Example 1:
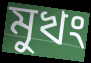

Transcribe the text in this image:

মুখং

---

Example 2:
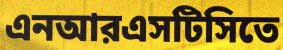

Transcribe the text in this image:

এনআরএসটিসিতে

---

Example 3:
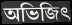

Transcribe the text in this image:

অভিজিৎ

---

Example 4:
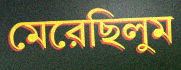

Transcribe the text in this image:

মেরেছিলুম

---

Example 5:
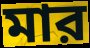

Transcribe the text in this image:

মার